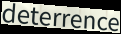
deterrence